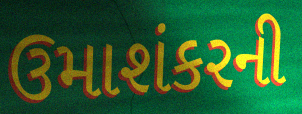
ઉમાશંકરની